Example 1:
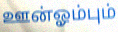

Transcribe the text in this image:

ஊன்ஓம்பும்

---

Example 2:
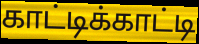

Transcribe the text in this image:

காட்டிக்காட்டி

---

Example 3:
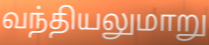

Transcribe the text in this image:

வந்தியலுமாறு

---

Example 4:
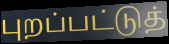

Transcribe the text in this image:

புறப்பட்டுத்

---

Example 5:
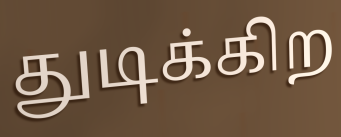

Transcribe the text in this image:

துடிக்கிற